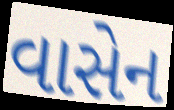
વાસેન